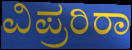
ವಿಪ್ರರಿರಾ